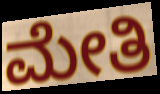
ಮೇತಿ